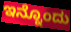
ಇನ್ನೊಂದು